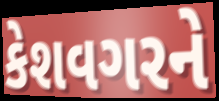
કેશવગરને